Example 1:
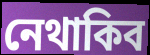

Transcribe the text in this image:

নেথাকিব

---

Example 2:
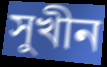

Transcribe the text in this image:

সুখীন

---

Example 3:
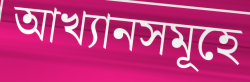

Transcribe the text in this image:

আখ্যানসমূহে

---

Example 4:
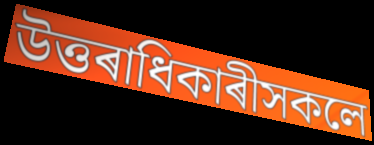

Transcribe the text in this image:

উত্তৰাধিকাৰীসকলে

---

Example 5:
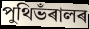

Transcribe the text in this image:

পুথিভঁৰালৰ